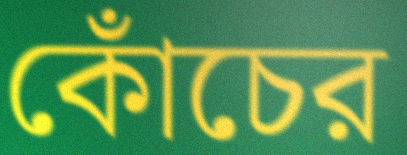
কোঁচের